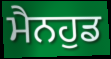
ਮੈਨਹੁਡ